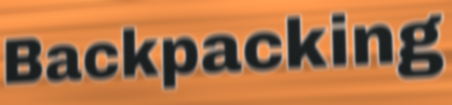
Backpacking